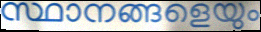
സ്ഥാനങ്ങളെയും